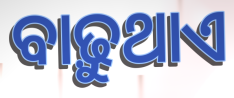
ବାଢ଼ୁଥାଏ